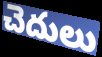
చెదులు